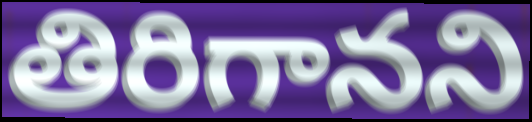
తిరిగానని